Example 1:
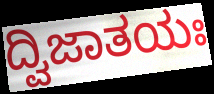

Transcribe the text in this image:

ದ್ವಿಜಾತಯಃ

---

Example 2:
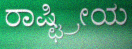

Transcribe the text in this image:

ರಾಷ್ಟ್ರೀಯ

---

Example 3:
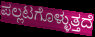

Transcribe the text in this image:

ಪಲ್ಲಟಗೊಳ್ಳುತ್ತದೆ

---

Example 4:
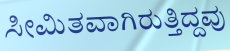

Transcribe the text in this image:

ಸೀಮಿತವಾಗಿರುತ್ತಿದ್ದವು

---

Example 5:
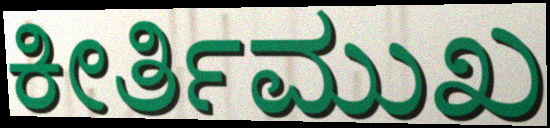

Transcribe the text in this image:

ಕೀರ್ತಿಮುಖ